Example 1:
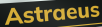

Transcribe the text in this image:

Astraeus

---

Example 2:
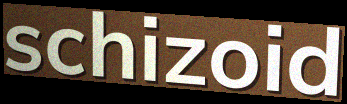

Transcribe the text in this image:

schizoid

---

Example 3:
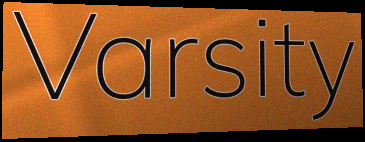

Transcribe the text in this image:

Varsity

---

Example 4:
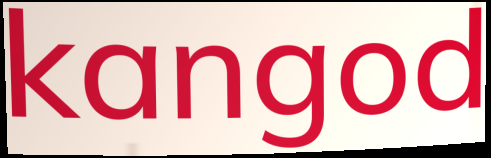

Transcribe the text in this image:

kangod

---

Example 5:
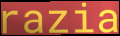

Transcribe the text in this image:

razia